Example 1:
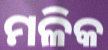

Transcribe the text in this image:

ମଳିକ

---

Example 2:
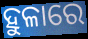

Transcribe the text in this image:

ହୁଳାରେ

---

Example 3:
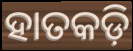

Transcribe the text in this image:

ହାତକଡ଼ି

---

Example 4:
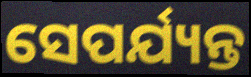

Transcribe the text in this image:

ସେପର୍ଯ୍ୟନ୍ତ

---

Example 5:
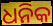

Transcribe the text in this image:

ଧନିକ